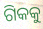
ଗିକକୁ